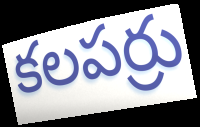
కలపర్రు